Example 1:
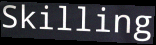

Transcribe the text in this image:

Skilling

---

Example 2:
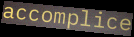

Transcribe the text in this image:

accomplice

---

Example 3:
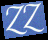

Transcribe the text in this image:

ZZ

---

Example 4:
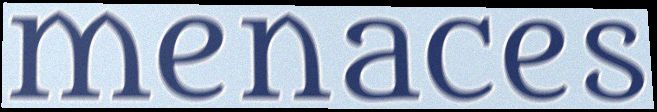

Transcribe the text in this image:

menaces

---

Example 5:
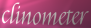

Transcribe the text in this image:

clinometer